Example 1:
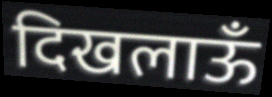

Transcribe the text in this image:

दिखलाऊँ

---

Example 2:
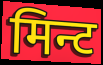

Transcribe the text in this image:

मिन्ट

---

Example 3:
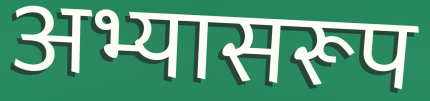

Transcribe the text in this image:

अभ्यासरूप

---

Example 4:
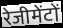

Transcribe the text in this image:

रेजीमेंटों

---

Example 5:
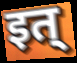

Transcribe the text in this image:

इत्